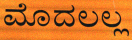
ಮೊದಲಲ್ಲ